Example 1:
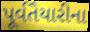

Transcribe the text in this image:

પૂર્વતૈયારીના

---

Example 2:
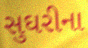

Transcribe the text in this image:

સુઘરીના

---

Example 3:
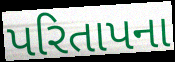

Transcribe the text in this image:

પરિતાપના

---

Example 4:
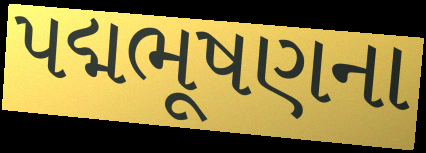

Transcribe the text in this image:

પદ્મભૂષણના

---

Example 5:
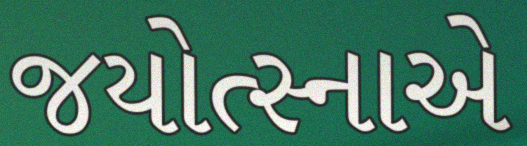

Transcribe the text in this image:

જયોત્સ્નાએ